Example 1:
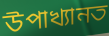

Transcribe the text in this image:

উপাখ্যানত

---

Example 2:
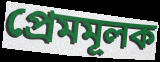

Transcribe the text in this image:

প্ৰেমমূলক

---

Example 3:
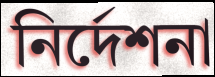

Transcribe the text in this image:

নিৰ্দেশনা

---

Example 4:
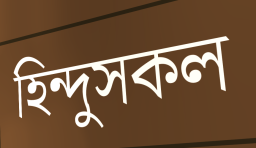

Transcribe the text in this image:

হিন্দুসকল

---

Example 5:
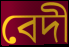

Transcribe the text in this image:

বেদী